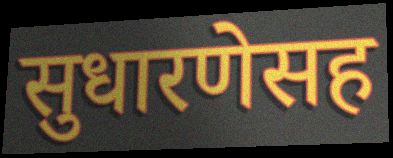
सुधारणेसह